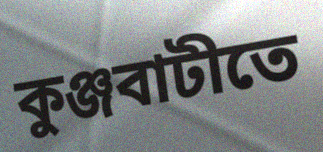
কুঞ্জবাটীতে